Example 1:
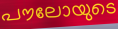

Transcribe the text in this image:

പൗലോയുടെ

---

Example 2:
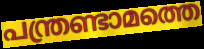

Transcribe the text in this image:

പന്ത്രണ്ടാമത്തെ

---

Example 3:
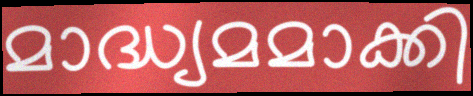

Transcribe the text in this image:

മാദ്ധ്യമമാക്കി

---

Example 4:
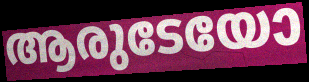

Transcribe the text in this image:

ആരുടേയോ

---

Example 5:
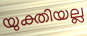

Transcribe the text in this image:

യുക്തിയല്ല